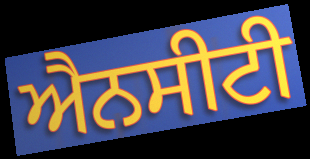
ਐਨਸੀਟੀ